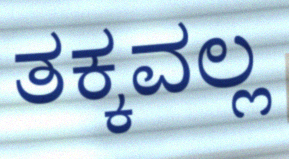
ತಕ್ಕವಲ್ಲ